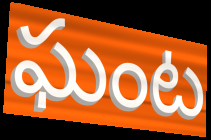
ఘంట